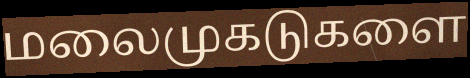
மலைமுகடுகளை